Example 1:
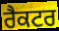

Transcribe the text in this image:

ਰੈਕਟਰ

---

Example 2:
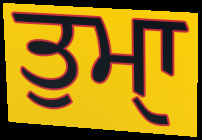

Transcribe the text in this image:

ਤੁਮਾੑ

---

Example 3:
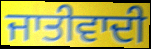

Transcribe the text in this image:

ਜਾਤੀਵਾਦੀ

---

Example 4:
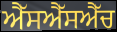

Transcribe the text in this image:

ਐੱਸਐੱਸਐੱਚ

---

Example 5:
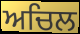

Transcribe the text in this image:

ਅਚਿਲ